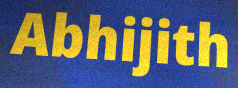
Abhijith